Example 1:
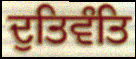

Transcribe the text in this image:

ਦੁਤਿਵੰਤਿ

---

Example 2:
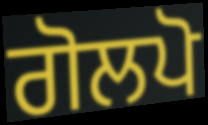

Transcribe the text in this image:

ਗੋਲਪੋ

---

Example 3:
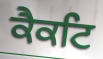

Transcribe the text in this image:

ਕੈਕਟਿ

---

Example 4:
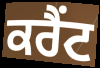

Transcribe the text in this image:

ਕਰੈਂਟ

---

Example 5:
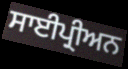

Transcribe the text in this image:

ਸਾਈਪ੍ਰੀਅਨ